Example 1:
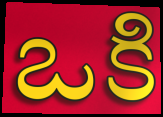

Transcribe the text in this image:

ఒకి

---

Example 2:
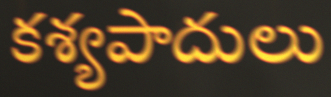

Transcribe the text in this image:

కశ్యపాదులు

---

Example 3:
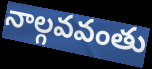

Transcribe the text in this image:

నాల్గవవంతు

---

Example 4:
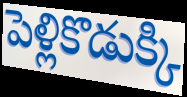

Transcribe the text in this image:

పెళ్లికొడుక్కి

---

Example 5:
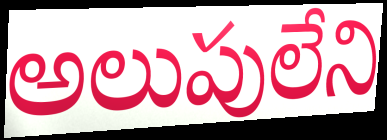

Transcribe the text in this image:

అలుపులేని